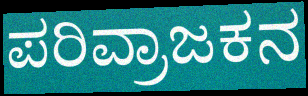
ಪರಿವ್ರಾಜಕನ